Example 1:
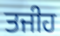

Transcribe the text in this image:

ਤਜੀਹ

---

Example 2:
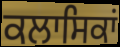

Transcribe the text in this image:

ਕਲਾਸਿਕਾਂ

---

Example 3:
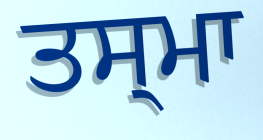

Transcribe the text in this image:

ਤਸ੍ਮਾ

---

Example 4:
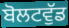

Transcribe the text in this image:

ਬੋਲਟਵੁੱਡ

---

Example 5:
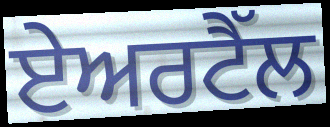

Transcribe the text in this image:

ਏਅਰਟੈੱਲ